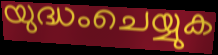
യുദ്ധംചെയ്യുക